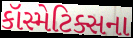
કૉસ્મેટિક્સના